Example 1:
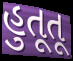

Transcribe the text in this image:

હુતૂતૂ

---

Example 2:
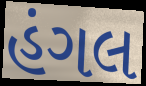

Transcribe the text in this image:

હંગલ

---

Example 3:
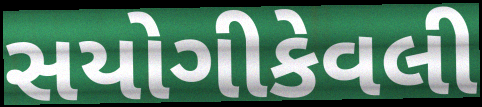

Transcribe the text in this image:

સયોગીકેવલી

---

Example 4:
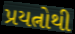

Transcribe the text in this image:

પ્રયત્નોથી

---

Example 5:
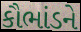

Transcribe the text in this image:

કૌભાંડને